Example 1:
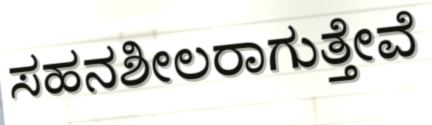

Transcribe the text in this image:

ಸಹನಶೀಲರಾಗುತ್ತೇವೆ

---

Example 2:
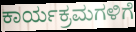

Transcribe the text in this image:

ಕಾರ್ಯಕ್ರಮಗಳಿಗೆ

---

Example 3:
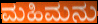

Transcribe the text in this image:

ಮಹಿಮನು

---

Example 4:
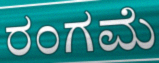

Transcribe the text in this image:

ರಂಗಮೆ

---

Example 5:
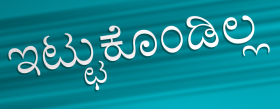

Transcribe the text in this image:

ಇಟ್ಟುಕೊಂಡಿಲ್ಲ